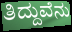
ತಿದ್ದುವೆನು